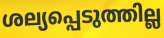
ശല്യപ്പെടുത്തില്ല